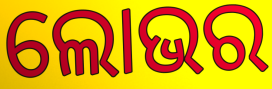
ଲୋଭର